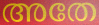
അതേ